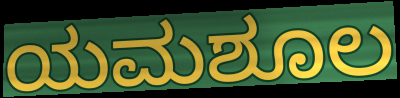
ಯಮಶೂಲ